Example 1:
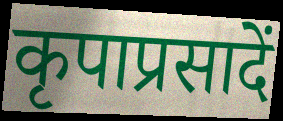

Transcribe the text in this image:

कृपाप्रसादें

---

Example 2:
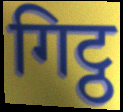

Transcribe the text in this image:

गिट्ठ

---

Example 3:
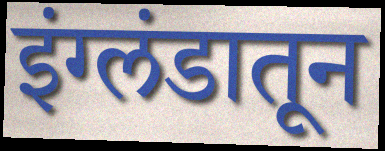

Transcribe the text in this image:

इंग्लंडातून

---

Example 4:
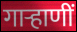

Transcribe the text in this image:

गाऱ्हाणीं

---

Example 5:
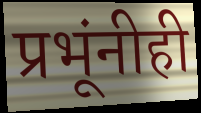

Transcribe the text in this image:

प्रभूंनीही